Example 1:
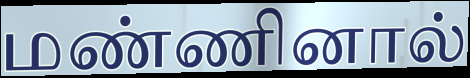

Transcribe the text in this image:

மண்ணினால்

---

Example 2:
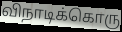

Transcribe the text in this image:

விநாடிக்கொரு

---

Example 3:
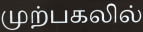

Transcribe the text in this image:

முற்பகலில்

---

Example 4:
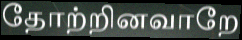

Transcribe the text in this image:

தோற்றினவாறே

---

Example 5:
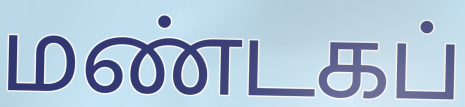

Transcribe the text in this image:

மண்டகப்